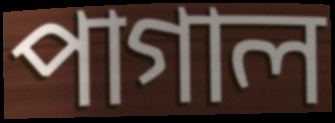
পাগাল